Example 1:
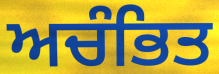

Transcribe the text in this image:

ਅਚੰਭਿਤ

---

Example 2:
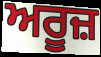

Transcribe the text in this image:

ਅਰੂਜ਼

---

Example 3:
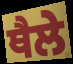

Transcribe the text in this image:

ਥੈਲੇ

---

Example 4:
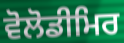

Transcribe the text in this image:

ਵੋਲੋਡੀਮਿਰ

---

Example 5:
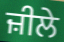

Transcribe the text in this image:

ਜ਼ੀਲੇ